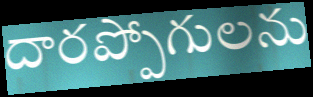
దారప్పోగులను